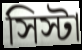
সিস্টা